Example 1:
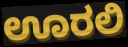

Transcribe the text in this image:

ಊರಲಿ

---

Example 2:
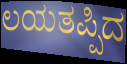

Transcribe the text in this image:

ಲಯತಪ್ಪಿದ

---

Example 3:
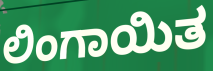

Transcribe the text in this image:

ಲಿಂಗಾಯಿತ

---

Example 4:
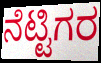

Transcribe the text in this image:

ನೆಟ್ಟಿಗರ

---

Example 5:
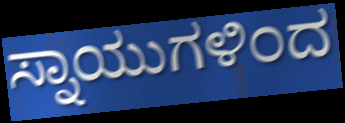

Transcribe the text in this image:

ಸ್ನಾಯುಗಳಿಂದ